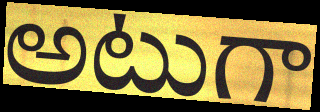
అటుగా